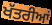
ਖੱਤਰੀਆਂ